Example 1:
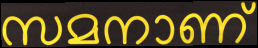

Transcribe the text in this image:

സമനാണ്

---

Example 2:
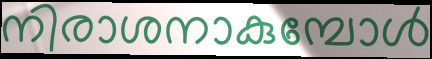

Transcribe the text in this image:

നിരാശനാകുമ്പോൾ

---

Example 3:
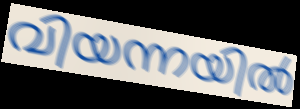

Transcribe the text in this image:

വിയന്നയിൽ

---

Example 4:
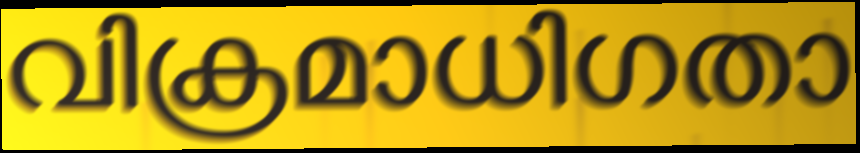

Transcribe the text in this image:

വിക്രമാധിഗതാ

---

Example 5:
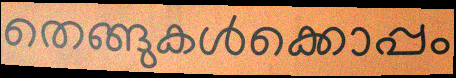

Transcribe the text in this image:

തെങ്ങുകൾക്കൊപ്പം